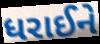
ધરાઈને